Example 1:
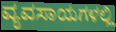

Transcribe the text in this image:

ವ್ಯವಸಾಯಗಳಲ್ಲಿ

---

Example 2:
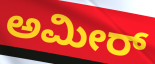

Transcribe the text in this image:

ಅಮೀರ್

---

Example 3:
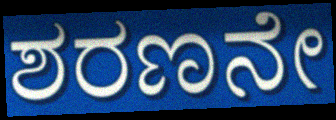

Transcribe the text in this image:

ಶರಣನೇ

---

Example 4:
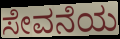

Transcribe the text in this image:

ಸೇವನೆಯ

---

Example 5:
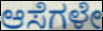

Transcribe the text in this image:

ಆಸೆಗಳೇ